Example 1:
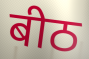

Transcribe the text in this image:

बीठ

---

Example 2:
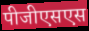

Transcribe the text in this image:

पीजीएसएस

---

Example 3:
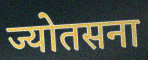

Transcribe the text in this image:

ज्योतसना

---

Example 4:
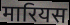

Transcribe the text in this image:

मारियस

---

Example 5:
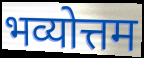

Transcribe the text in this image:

भव्योत्तम